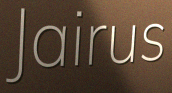
Jairus